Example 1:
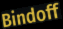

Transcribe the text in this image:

Bindoff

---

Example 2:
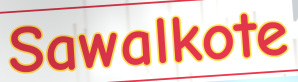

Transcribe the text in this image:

Sawalkote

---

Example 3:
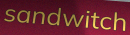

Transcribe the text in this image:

sandwitch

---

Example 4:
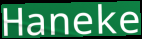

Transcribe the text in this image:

Haneke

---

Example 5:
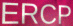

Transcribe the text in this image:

ERCP